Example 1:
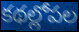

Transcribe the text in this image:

కథల్లోపల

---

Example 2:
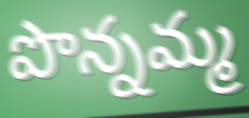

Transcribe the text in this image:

పొన్నమ్మ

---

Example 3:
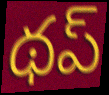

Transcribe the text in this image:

థప్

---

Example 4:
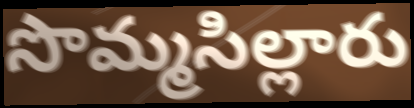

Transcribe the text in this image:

సొమ్మసిల్లారు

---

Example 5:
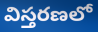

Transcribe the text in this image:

విస్తరణలో